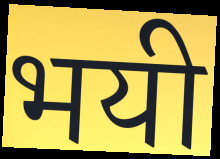
भयी